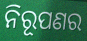
ନିରୂପଣର